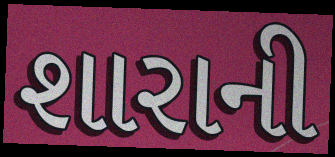
શારાની